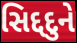
સિદ્દદુને